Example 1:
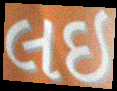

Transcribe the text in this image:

લઇ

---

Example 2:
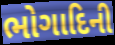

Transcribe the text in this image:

ભોગાદિની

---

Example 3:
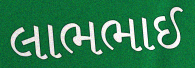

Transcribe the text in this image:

લાભભાઈ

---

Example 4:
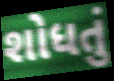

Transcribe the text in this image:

શોધતું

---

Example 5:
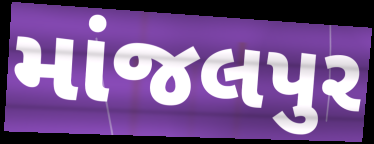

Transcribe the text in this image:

માંજલપુર